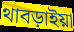
থাবড়াইয়া